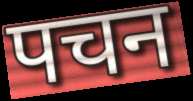
पचन